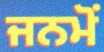
ਜਨਮੋਂ